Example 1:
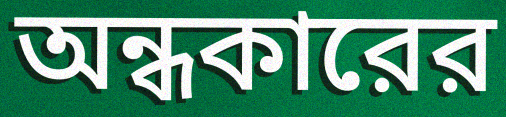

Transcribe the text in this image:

অন্ধকারের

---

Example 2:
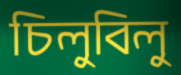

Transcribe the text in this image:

চিলুবিলু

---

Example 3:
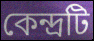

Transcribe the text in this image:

কেন্দ্রটি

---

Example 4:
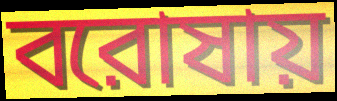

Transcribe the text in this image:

বরোষায়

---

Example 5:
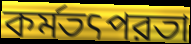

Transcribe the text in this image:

কর্মতৎপরতা